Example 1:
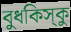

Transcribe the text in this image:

বুধকিস্‌কু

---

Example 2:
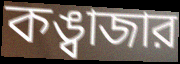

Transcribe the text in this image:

কঙ্বাজার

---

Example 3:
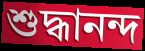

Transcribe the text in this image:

শুদ্ধানন্দ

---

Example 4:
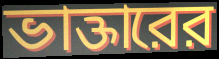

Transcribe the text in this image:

ভাক্তারের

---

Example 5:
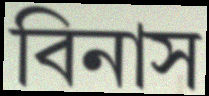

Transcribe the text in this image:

বিনাস